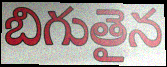
బిగుతైన